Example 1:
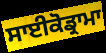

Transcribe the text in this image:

ਸਾਈਕੋਡ੍ਰਾਮਾ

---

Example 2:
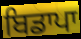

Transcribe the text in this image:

ਬਿਡਾਪਾ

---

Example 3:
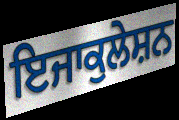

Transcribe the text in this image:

ਇਜਾਕੁਲੇਸ਼ਨ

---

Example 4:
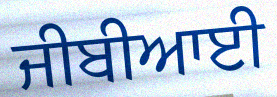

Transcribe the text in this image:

ਜੀਬੀਆਈ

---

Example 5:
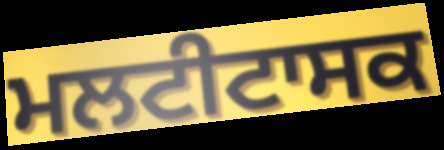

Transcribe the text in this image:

ਮਲਟੀਟਾਸਕ